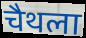
चैथला